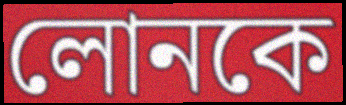
লোনকে